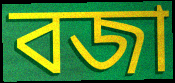
বজা